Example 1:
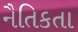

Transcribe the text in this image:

નૈતિકતા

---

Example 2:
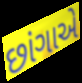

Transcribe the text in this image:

છાંગાએ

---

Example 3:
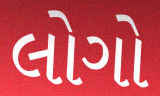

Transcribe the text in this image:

લોગો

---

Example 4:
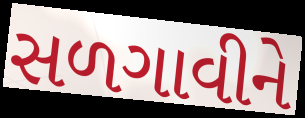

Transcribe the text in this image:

સળગાવીને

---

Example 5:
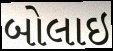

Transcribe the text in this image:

બોલાઇ